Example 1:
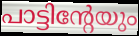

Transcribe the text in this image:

പാട്ടിന്റേയും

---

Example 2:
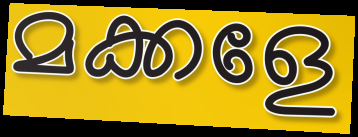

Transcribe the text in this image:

മക്കളേ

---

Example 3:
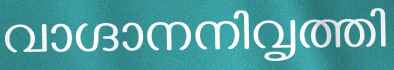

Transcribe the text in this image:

വാഗ്ദാനനിവൃത്തി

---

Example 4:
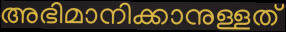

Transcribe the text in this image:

അഭിമാനിക്കാനുള്ളത്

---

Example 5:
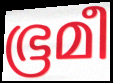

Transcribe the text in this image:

ഭൂമീ